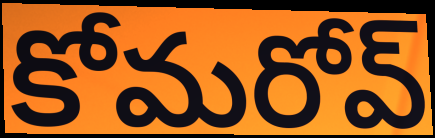
కోమరోవ్